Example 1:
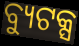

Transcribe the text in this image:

ବ୍ୟୁଟକ୍ସ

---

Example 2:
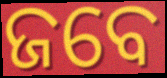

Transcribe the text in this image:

ଜବେ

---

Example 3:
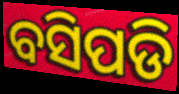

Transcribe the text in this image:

ବସିପଡି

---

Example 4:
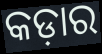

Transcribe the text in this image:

କଡ଼ାର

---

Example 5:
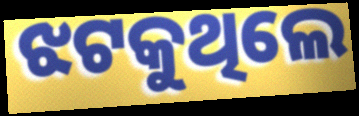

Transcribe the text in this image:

ଝଟକୁଥିଲେ